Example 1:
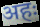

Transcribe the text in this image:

अहः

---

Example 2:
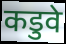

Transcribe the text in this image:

कडुवे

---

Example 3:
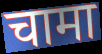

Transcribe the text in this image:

चामा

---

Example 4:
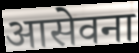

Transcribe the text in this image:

आसेवना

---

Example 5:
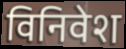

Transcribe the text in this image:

विनिवेश